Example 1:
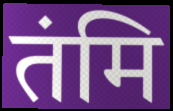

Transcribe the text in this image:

तंमि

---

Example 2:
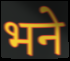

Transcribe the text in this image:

भने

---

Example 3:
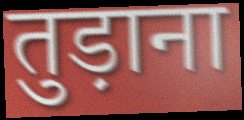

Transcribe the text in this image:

तुड़ाना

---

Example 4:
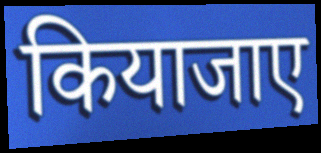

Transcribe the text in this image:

कियाजाए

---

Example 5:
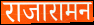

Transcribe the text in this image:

राजारामन